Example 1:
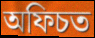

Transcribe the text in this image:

অফিচত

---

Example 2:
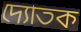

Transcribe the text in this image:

দ্যোতক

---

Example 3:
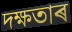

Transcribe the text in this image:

দক্ষতাৰ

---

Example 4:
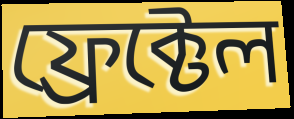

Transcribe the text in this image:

ফ্ৰেক্টেল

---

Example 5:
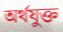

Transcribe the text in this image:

অৰ্থযুক্ত